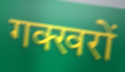
गक्खरों